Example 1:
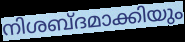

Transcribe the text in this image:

നിശബ്ദമാക്കിയും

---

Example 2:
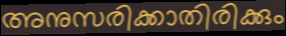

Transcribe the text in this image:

അനുസരിക്കാതിരിക്കും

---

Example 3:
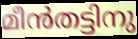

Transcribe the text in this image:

മീൻതട്ടിനു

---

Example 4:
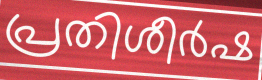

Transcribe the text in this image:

പ്രതിശീർഷ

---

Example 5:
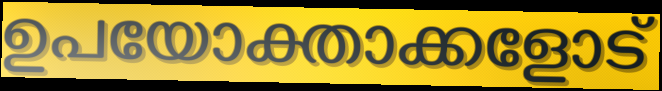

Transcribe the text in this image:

ഉപയോക്താക്കളോട്